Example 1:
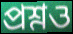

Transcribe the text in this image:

প্ৰশ্নও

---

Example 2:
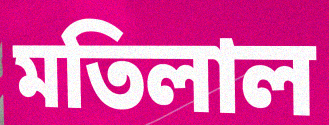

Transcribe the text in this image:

মতিলাল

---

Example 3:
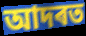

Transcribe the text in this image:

আদৰত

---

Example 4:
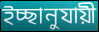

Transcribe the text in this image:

ইচ্ছানুযায়ী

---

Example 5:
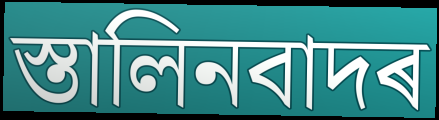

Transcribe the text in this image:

স্তালিনবাদৰ